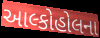
આલ્કોહોલના